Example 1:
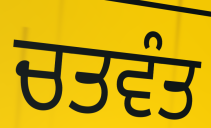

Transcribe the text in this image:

ਚਤਵੰਤ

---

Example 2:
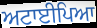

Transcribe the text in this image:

ਅਟਾਈਪਿਆ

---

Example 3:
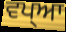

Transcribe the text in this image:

ਵਪ੍ਆ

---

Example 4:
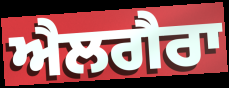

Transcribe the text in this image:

ਐਲਗੈਰਾ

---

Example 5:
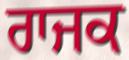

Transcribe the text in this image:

ਰਾਜਕ